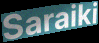
Saraiki